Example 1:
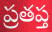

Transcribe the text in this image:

ప్రతప్త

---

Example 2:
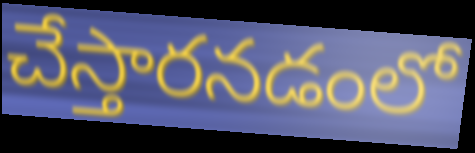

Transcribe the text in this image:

చేస్తారనడంలో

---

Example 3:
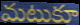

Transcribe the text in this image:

మటుకూ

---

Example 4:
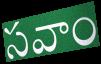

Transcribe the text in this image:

సవాం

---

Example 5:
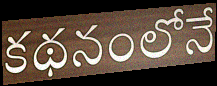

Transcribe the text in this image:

కథనంలోనే